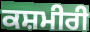
ਕਸ਼ਮੀਰੀ